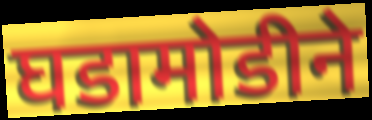
घडामोडीने